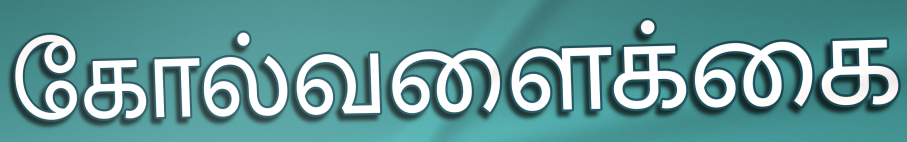
கோல்வளைக்கை